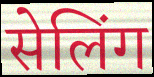
सेलिंग